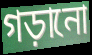
গড়ানো